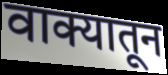
वाक्यातून